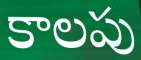
కాలపు